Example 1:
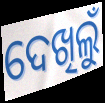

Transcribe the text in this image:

ଦେଖିଲୁଁ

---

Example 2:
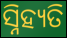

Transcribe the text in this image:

ସ୍ନିହ୍ୟତି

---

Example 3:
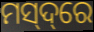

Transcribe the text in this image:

ମସ୍‌ଦ୍‌ରେ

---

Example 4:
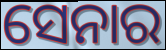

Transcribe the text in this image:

ସେନାର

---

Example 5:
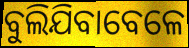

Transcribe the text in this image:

ବୁଲିଯିବାବେଳେ